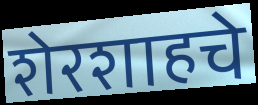
शेरशाहचे